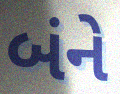
બંને